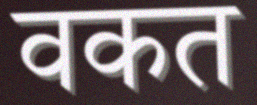
वकत